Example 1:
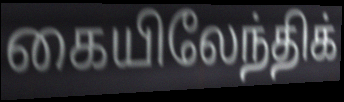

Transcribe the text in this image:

கையிலேந்திக்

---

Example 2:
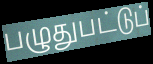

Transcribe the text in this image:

பழுதுபட்டுப்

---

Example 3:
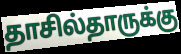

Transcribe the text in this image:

தாசில்தாருக்கு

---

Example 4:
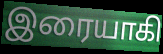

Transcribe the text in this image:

இரையாகி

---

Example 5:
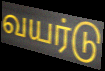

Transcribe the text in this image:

வயர்டு